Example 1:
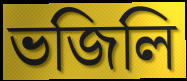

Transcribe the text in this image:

ভজিলি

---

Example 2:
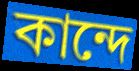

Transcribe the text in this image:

কান্দে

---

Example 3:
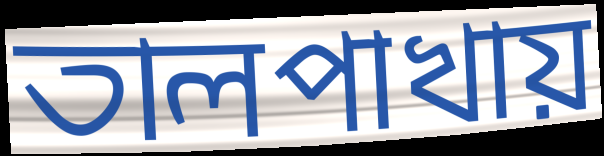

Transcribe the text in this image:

তালপাখায়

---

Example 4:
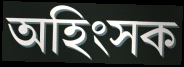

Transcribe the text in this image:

অহিংসক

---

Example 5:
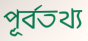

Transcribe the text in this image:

পূর্বতথ্য